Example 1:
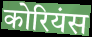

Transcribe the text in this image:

कोरियंस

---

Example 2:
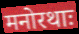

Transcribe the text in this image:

मनोरथाः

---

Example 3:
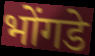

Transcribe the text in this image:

भोंगडे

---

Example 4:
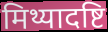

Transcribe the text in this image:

मिथ्यादष्टि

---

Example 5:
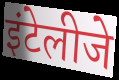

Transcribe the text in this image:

इंटेलीजे